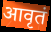
आवृतं